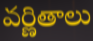
వర్ణితాలు